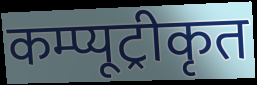
कम्प्यूट्रीकृत